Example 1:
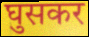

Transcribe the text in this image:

घुसकर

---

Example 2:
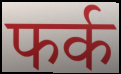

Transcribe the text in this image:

फर्क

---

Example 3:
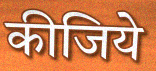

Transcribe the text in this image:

कीजिये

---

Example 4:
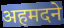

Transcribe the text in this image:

अहमदने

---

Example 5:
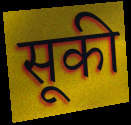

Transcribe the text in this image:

सूकी